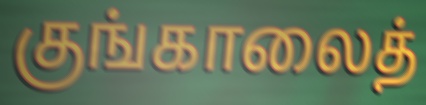
குங்காலைத்